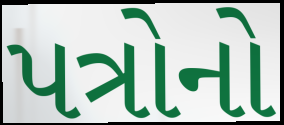
પત્રોનો